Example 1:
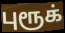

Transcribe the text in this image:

புரூக்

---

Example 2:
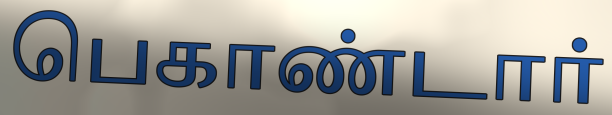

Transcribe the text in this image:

பெகாண்டார்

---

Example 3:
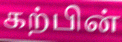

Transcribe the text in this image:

கற்பின்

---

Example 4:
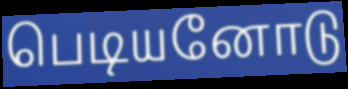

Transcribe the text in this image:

பெடியனோடு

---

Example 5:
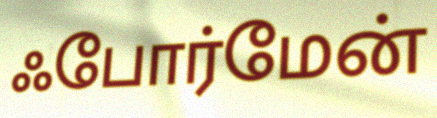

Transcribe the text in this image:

ஃபோர்மேன்